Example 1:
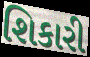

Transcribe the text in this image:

શિકારી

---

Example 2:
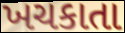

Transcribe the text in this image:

ખચકાતા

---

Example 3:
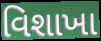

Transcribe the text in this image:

વિશાખા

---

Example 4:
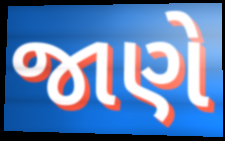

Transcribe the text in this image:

જાણે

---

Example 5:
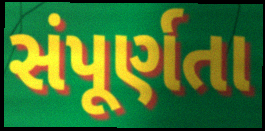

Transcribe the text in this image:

સંપૂર્ણતા